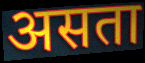
असता